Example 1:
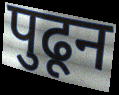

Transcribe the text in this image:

पुढून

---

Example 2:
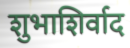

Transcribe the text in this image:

शुभाशिर्वाद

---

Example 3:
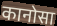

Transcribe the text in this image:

कानोसा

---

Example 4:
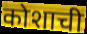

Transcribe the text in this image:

कोशाची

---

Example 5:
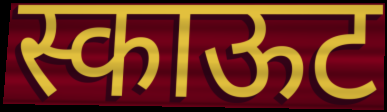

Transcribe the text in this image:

स्काऊट